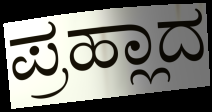
ಪ್ರಹ್ಲಾದ